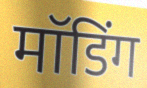
मॉडिंग